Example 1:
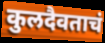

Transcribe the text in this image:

कुलदैवताचं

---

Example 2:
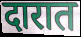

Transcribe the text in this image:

दारात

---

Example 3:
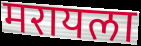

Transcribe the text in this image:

मरायला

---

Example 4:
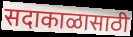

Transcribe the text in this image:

सदाकाळासाठी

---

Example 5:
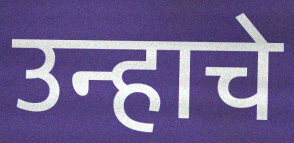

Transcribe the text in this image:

उन्हाचे